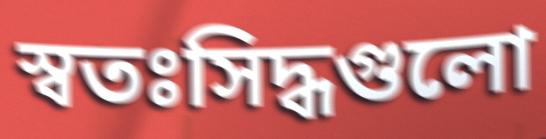
স্বতঃসিদ্ধগুলো